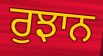
ਰੁਝਾਨ